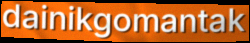
dainikgomantak